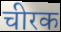
चीरक